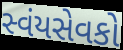
સ્વંયસેવકો